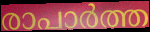
രാപാർത്ത